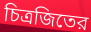
চিত্রজিতের